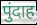
पुंदाह